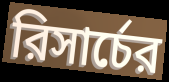
রিসার্চের